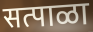
सत्पाळा